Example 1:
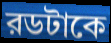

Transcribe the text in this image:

রডটাকে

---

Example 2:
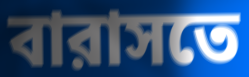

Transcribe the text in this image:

বারাসতে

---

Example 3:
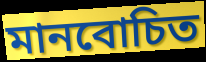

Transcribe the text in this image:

মানবোচিত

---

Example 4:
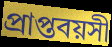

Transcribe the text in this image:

প্রাপ্তবয়সী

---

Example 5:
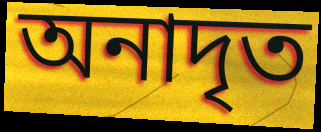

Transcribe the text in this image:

অনাদৃত